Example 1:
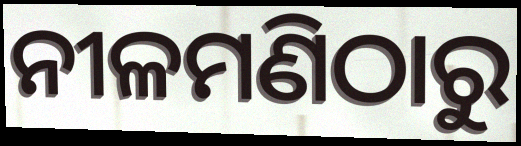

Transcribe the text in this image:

ନୀଳମଣିଠାରୁ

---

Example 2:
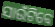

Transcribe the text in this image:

ସାଉଁଟିବେ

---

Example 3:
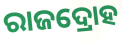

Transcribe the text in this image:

ରାଜଦ୍ରୋହ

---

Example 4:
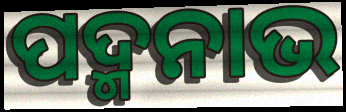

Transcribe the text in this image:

ପଦ୍ମନାଭ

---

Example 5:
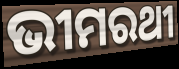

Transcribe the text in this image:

ଭୀମରଥୀ